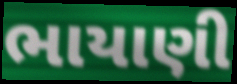
ભાયાણી